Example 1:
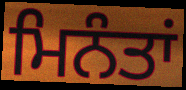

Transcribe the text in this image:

ਮਿਨੰਤਾਂ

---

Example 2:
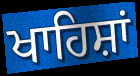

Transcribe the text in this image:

ਖਾਹਿਸ਼ਾਂ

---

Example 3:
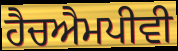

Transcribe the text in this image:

ਹੈਚਐਮਪੀਵੀ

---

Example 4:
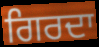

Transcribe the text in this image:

ਗਿਰਦਾ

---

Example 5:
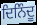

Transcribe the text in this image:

ਦਿਨਿੰਦੂ